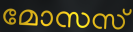
മോസസ്